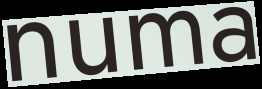
numa